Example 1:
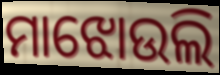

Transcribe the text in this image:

ମାଝୋଉଲି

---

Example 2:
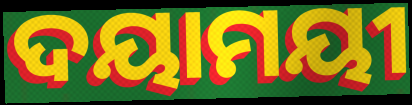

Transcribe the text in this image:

ଦୟାମୟୀ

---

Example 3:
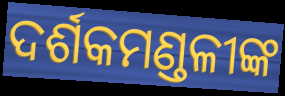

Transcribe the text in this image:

ଦର୍ଶକମଣ୍ଡଳୀଙ୍କ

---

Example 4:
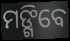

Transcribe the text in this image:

ମଙ୍ଗିବେ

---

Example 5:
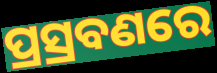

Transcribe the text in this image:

ପ୍ରସ୍ରବଣରେ